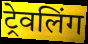
ट्रेवलिंग